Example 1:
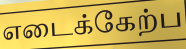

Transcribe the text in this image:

எடைக்கேற்ப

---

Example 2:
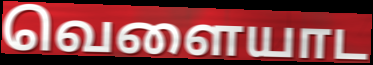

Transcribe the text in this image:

வெளையாட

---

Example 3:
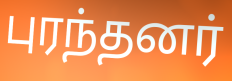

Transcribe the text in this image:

புரந்தனர்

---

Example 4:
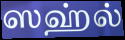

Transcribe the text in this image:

ஸஹ்ல்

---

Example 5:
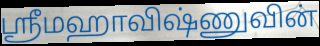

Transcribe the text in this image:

ஸ்ரீமஹாவிஷ்ணுவின்